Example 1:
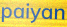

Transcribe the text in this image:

paiyan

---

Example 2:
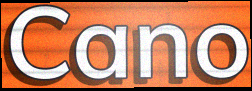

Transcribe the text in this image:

Cano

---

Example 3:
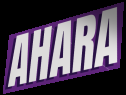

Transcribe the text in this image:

AHARA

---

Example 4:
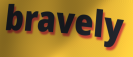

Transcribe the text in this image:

bravely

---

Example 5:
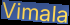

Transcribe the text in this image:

Vimala